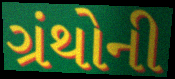
ગ્રંથોની